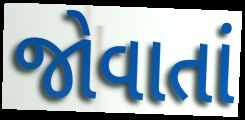
જોવાતાં